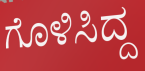
ಗೊಳಿಸಿದ್ದ